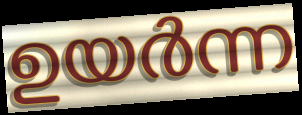
ഉയർന്ന